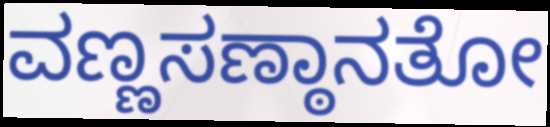
ವಣ್ಣಸಣ್ಠಾನತೋ